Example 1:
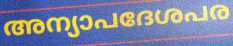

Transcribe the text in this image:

അന്യാപദേശപര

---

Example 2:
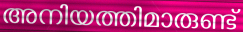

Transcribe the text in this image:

അനിയത്തിമാരുണ്ട്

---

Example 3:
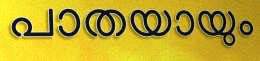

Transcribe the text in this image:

പാതയായും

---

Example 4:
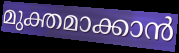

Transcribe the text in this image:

മുക്തമാക്കാൻ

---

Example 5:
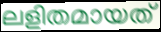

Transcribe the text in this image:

ലളിതമായത്